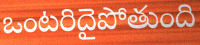
ఒంటరిదైపోతుంది